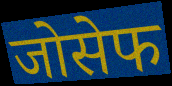
जोसेफ